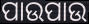
ପାଉପାଉ